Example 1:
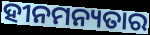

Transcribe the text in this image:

ହୀନମନ୍ୟତାର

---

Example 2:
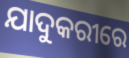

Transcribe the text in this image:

ଯାଦୁକରୀରେ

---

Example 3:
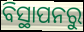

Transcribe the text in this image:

ବିସ୍ଥାପନରୁ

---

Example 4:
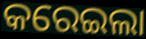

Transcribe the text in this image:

କରେଇଲା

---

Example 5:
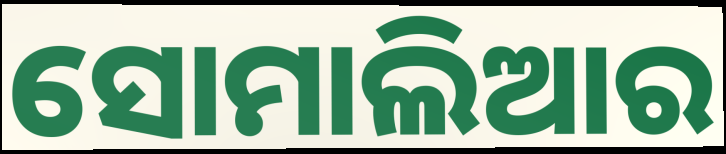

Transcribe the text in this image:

ସୋମାଲିଆର